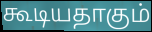
கூடியதாகும்